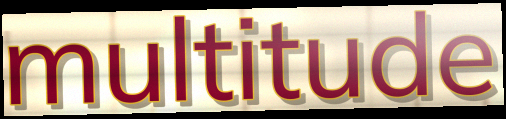
multitude